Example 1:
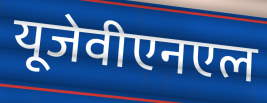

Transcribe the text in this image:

यूजेवीएनएल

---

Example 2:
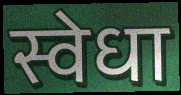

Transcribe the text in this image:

स्वेधा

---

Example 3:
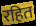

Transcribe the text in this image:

रहित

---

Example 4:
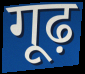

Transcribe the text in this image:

गूढ़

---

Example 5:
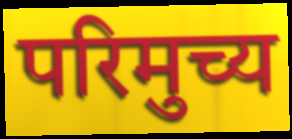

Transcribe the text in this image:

परिमुच्य